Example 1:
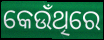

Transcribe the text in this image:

କେଉଁଥିରେ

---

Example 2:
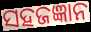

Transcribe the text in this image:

ସହଜଜ୍ଞାନ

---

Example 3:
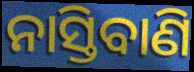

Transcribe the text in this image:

ନାସ୍ତିବାଣି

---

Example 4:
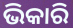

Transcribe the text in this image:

ଭିକାରି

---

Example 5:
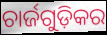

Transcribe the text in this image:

ଚାର୍ଜଗୁଡ଼ିକର